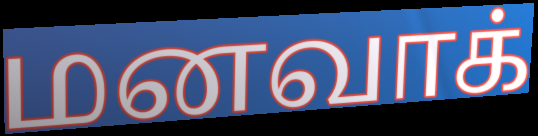
மனவாக்